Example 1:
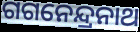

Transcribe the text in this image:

ଗଗନେନ୍ଦ୍ରନାଥ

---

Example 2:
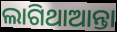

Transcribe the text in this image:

ଲାଗିଥାଆନ୍ତା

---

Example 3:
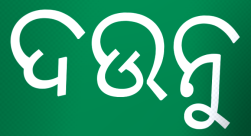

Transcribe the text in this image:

ଦଉନୁ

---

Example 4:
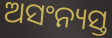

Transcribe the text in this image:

ଅସଂନ୍ୟସ୍ତ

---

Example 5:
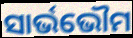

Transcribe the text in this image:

ସାର୍ଭଭୌମ